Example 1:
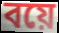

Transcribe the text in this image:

বয়ে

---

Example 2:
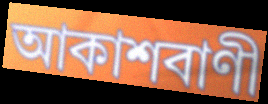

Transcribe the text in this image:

আকাশবাণী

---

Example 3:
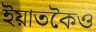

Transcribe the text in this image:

ইয়াতকৈও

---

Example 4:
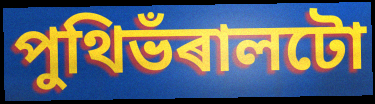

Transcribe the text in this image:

পুথিভঁৰালটো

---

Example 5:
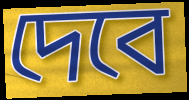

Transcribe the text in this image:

দেবে